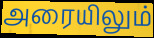
அரையிலும்